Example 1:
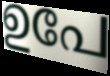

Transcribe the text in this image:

ഉപേ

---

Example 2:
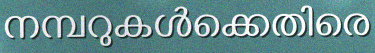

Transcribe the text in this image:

നമ്പറുകൾക്കെതിരെ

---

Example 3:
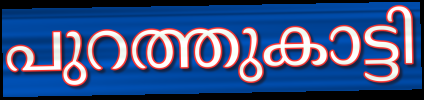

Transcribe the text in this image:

പുറത്തുകാട്ടി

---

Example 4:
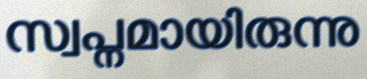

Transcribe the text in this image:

സ്വപ്നമായിരുന്നു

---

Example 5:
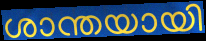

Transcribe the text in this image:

ശാന്തയായി